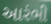
આરંભી